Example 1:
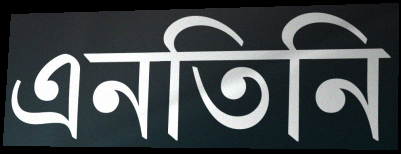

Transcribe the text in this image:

এনতিনি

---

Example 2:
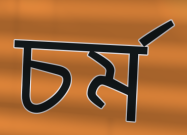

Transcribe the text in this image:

চর্ম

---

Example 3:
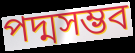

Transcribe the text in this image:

পদ্মসম্ভব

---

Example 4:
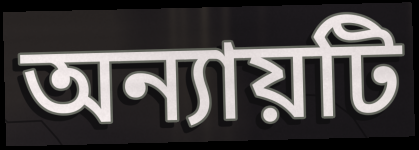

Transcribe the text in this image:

অন্যায়টি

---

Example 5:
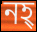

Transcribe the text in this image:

নহ্